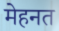
मेहनत